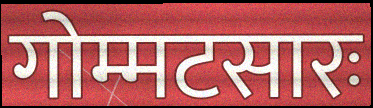
गोम्मटसारः